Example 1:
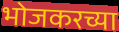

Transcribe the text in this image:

भोजकरच्या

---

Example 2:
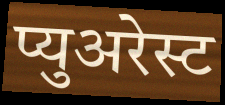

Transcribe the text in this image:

प्युअरेस्ट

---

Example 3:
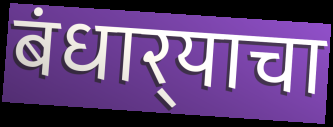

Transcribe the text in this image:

बंधार्‍याचा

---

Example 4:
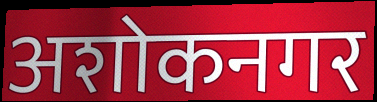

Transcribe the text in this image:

अशोकनगर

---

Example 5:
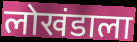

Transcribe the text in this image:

लोखंडाला